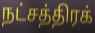
நட்சத்திரக்